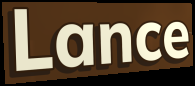
Lance